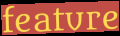
feature